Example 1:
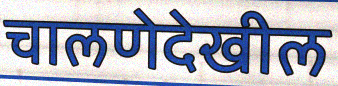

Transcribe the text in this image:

चालणेदेखील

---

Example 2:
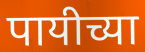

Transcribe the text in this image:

पायीच्या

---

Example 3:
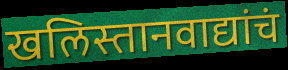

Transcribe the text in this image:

खलिस्तानवाद्यांचं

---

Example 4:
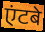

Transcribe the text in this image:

एंटबे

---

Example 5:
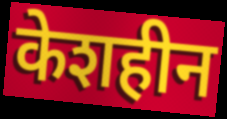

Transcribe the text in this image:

केशहीन